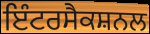
ਇੰਟਰਸੈਕਸ਼ਨਲ